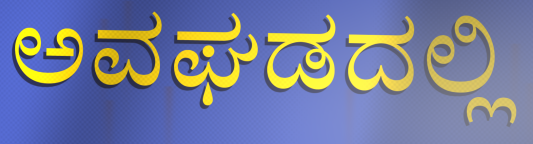
ಅವಘಡದಲ್ಲಿ